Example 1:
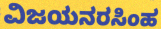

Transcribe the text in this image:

ವಿಜಯನರಸಿಂಹ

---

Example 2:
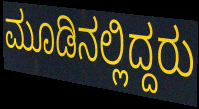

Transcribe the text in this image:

ಮೂಡಿನಲ್ಲಿದ್ದರು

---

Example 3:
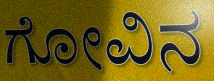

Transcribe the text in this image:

ಗೋವಿನ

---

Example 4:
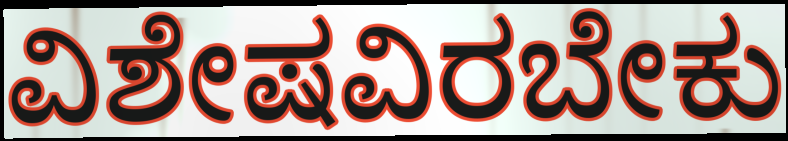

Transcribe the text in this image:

ವಿಶೇಷವಿರಬೇಕು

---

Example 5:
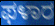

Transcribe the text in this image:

ಫಳಾರ